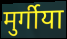
मुर्गीया